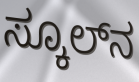
ಸ್ಕೂಲ್‌ನ